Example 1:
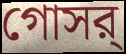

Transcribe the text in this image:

গোসর্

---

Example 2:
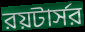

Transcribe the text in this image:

রয়টার্সর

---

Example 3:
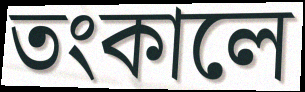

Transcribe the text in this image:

তংকালে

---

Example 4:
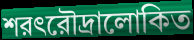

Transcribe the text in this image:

শরৎরৌদ্রালোকিত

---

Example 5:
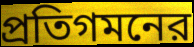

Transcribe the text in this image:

প্রতিগমনের